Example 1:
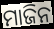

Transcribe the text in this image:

ମାଜିନ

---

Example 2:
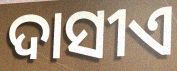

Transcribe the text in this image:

ଦାସୀଏ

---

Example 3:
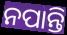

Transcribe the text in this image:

ନପାନ୍ତି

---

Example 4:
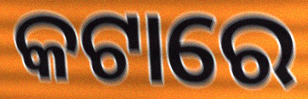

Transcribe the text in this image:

କଟାରେ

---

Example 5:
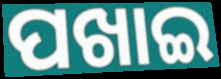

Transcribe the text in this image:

ପଖାଇ